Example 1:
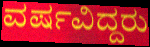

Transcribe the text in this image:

ವರ್ಷವಿದ್ದರು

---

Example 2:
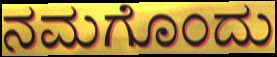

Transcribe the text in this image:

ನಮಗೊಂದು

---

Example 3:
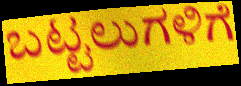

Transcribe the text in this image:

ಬಟ್ಟಲುಗಳಿಗೆ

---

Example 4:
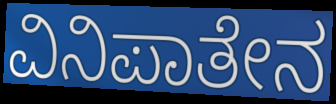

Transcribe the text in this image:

ವಿನಿಪಾತೇನ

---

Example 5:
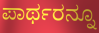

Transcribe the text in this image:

ಪಾರ್ಥರನ್ನೂ